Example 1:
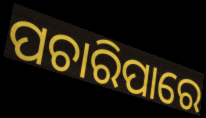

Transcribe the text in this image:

ପଚାରିପାରେ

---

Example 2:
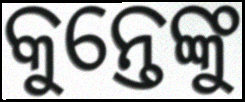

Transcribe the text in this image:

କୁନ୍ତେଙ୍କୁ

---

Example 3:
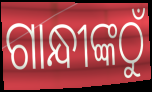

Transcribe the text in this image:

ଗାନ୍ଧୀଙ୍କଠୁଁ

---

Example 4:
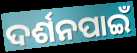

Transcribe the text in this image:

ଦର୍ଶନପାଇଁ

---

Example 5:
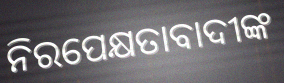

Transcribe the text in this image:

ନିରପେକ୍ଷତାବାଦୀଙ୍କ